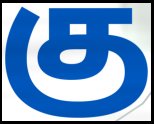
கு